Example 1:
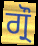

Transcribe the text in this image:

ਗ੍ਰੌ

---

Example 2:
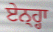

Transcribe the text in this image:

ਏਨ੍ਹ੍ਹਾ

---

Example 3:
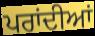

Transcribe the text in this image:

ਪਰਾਂਦੀਆਂ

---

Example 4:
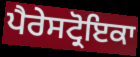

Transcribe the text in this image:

ਪੈਰੇਸਟ੍ਰੋਇਕਾ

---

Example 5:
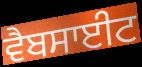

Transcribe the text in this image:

ਵੈਬਸਾਈਟ